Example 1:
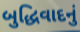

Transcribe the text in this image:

બુદ્ધિવાદનું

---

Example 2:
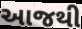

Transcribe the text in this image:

આજથી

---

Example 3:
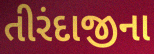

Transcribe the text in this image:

તીરંદાજીના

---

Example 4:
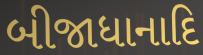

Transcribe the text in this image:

બીજાધાનાદિ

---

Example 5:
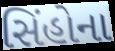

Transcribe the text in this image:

સિંહોના